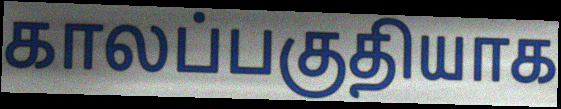
காலப்பகுதியாக